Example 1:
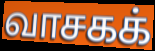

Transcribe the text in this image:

வாசகக்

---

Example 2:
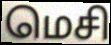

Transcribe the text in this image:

மெசி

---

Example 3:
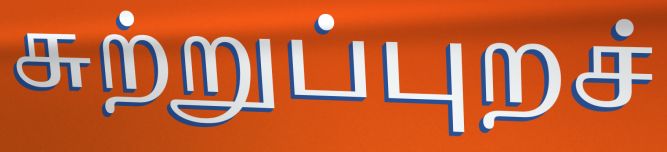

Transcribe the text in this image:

சுற்றுப்புறச்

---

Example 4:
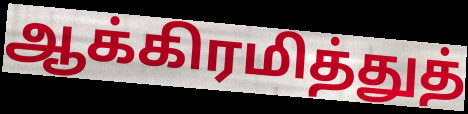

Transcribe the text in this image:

ஆக்கிரமித்துத்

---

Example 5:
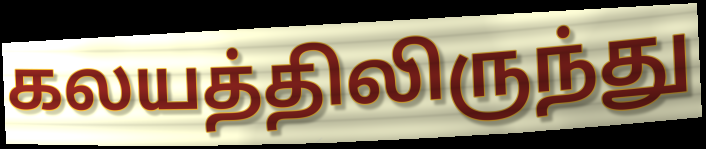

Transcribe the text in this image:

கலயத்திலிருந்து